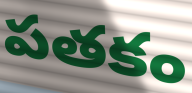
పతకం